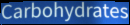
Carbohydrates